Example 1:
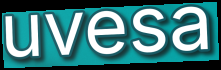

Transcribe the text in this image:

uvesa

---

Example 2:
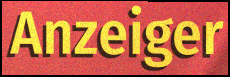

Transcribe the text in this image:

Anzeiger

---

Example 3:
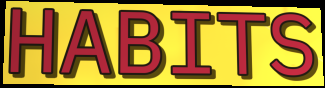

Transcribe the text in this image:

HABITS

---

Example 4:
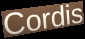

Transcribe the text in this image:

Cordis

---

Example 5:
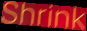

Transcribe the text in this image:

Shrink